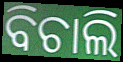
ବିଚାଲି